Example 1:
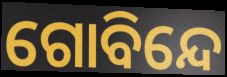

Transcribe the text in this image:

ଗୋବିନ୍ଦେ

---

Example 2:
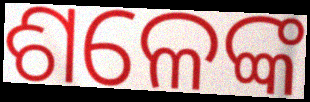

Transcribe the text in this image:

ଶଳେଙ୍କ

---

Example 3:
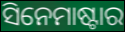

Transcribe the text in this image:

ସିନେମାଷ୍ଟାର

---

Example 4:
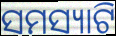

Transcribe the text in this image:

ସମସ୍ୟାଟି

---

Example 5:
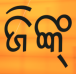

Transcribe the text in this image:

ଜିଙ୍କ୍